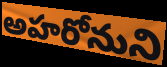
అహరోనుని